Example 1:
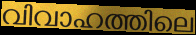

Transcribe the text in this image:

വിവാഹത്തിലെ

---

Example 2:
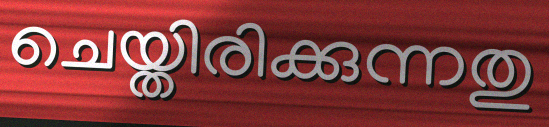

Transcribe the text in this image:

ചെയ്തിരിക്കുന്നതു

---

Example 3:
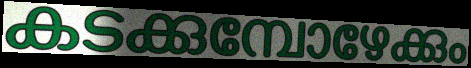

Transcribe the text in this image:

കടക്കുമ്പോഴേക്കും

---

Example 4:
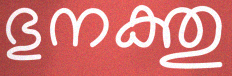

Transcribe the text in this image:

ഭുനക്തു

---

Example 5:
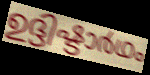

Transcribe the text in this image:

ഉദ്ദിഷ്ടാർഥം